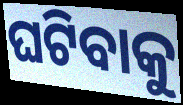
ଘଟିବାକୁ